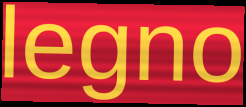
legno